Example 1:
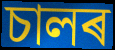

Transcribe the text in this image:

চালৰ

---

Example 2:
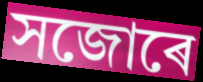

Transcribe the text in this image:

সজোৰে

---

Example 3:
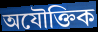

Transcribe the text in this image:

অযৌক্তিক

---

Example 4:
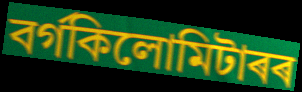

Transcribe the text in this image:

বৰ্গকিলোমিটাৰৰ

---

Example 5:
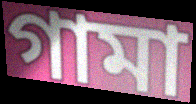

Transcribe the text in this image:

গামা